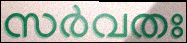
സർവതഃ